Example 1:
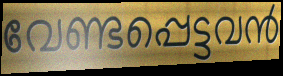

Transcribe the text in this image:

വേണ്ടപ്പെട്ടവൻ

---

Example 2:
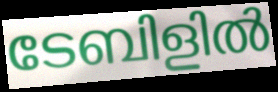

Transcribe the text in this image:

ടേബിളിൽ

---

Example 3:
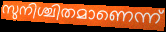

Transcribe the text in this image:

സുനിശ്ചിതമാണെന്ന്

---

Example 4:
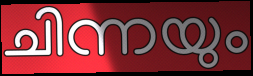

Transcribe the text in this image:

ചിന്നയും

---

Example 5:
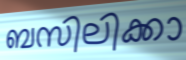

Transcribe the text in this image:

ബസിലിക്കാ